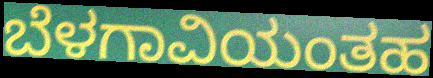
ಬೆಳಗಾವಿಯಂತಹ